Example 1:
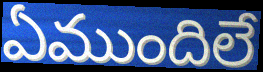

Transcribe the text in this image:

ఏముందిలే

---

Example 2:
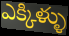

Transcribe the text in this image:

ఎక్కిళ్ళు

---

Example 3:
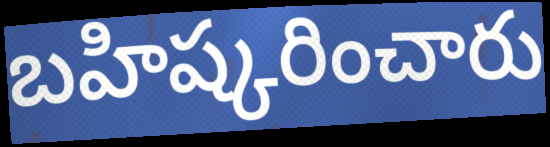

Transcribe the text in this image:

బహిష్కరించారు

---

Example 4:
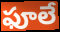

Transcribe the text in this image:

ఫూలే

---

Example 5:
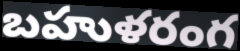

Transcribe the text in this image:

బహుళరంగ